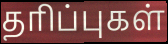
தரிப்புகள்